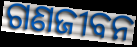
ଗଣଜୀବନ